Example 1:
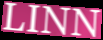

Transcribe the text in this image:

LINN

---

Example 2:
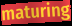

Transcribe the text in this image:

maturing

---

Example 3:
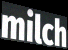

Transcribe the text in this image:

milch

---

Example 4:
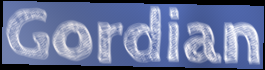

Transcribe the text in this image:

Gordian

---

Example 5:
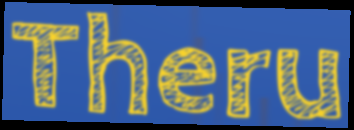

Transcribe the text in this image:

Theru